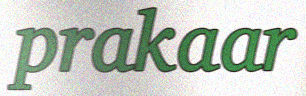
prakaar